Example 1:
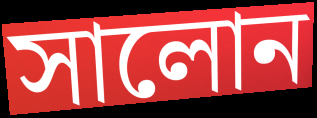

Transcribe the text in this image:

সালোন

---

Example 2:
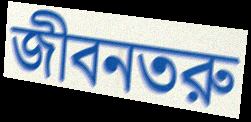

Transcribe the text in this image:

জীবনতরু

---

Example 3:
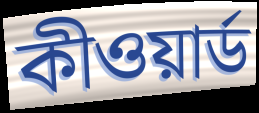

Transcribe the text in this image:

কীওয়ার্ড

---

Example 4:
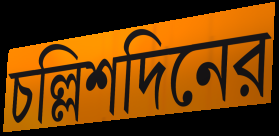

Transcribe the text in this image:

চল্লিশদিনের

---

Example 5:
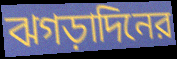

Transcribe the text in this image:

ঝগড়াদিনের